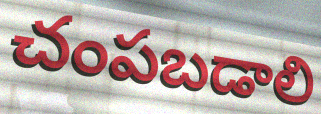
చంపబడాలి